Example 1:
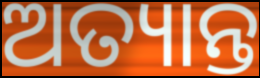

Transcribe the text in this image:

ଅତ୍ୟାନ୍ତ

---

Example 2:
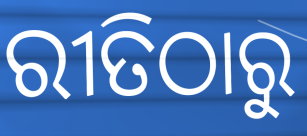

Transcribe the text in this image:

ରୀତିଠାରୁ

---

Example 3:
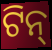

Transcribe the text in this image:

ଟିନ୍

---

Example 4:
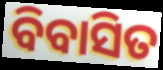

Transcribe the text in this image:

ବିବାସିତ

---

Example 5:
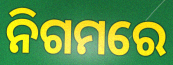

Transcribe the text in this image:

ନିଗମରେ